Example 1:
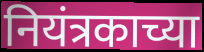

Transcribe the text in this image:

नियंत्रकाच्या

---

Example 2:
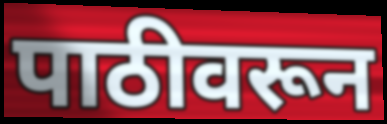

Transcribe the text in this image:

पाठीवरून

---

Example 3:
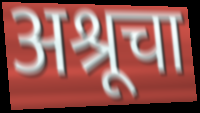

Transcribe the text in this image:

अश्रूचा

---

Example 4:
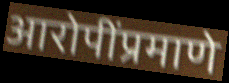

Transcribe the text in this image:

आरोपींप्रमाणे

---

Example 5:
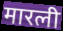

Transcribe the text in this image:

मारली